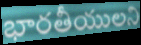
భారతీయులని